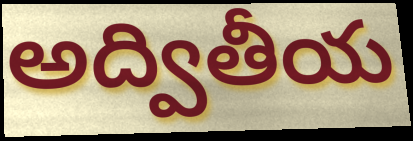
అద్వితీయ